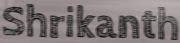
Shrikanth